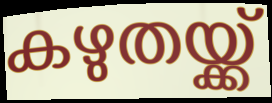
കഴുതയ്ക്ക്